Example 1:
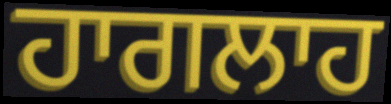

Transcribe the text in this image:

ਹਾਗਲਾਹ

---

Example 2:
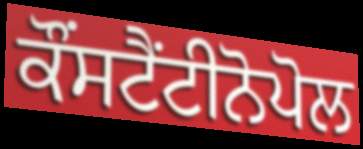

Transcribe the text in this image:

ਕੌਂਸਟੈਂਟੀਨੋਪੋਲ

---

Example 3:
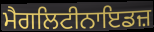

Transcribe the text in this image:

ਮੈਗਲਿਟੀਨਾਇਡਜ਼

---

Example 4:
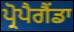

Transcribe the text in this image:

ਪ੍ਰੋਪੈਗੈਂਡਾ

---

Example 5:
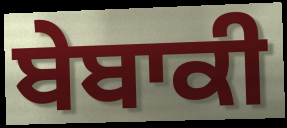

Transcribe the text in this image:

ਬੇਬਾਕੀ